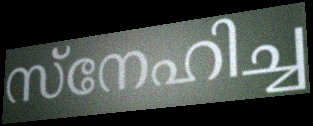
സ്നേഹിച്ച